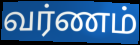
வர்ணம்